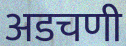
अडचणी